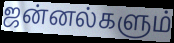
ஜன்னல்களும்